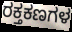
ರಕ್ತಕಣಗಳ